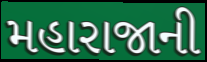
મહારાજાની